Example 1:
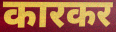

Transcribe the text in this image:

कारकर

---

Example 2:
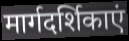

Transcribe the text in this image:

मार्गदर्शिकाएं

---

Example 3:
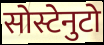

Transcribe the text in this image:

सोस्टेनुटो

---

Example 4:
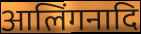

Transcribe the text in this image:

आलिंगनादि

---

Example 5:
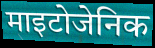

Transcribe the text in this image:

माइटोजेनिक